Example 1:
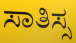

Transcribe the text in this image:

ಸಾತಿಸ್ಸ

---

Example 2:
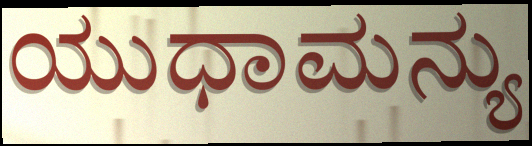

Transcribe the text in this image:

ಯುಧಾಮನ್ಯು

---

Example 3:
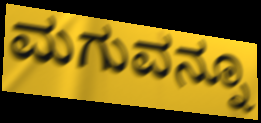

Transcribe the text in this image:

ಮಗುವನ್ನೂ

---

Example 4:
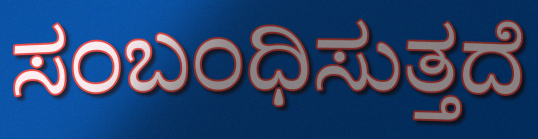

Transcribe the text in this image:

ಸಂಬಂಧಿಸುತ್ತದೆ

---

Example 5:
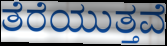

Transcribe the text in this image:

ತೆರೆಯುತ್ತವೆ